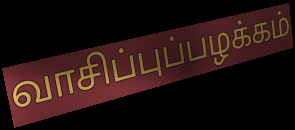
வாசிப்புப்பழக்கம்